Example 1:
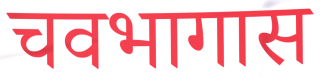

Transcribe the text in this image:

चवभागास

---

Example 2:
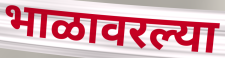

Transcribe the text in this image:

भाळावरल्या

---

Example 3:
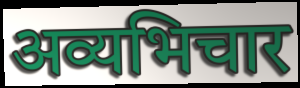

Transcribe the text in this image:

अव्यभिचार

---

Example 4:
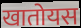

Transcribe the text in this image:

खातोयस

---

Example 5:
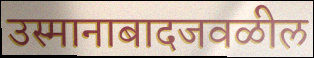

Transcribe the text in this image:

उस्मानाबादजवळील